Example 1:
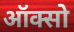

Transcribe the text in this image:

ऑक्सो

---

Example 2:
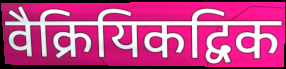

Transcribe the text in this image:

वैक्रियिकद्विक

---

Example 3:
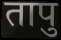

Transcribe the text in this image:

तापु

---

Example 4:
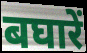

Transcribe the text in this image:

बघारें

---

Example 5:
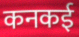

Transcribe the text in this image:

कनकई